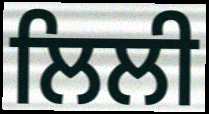
ਲਿਲੀ